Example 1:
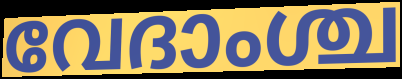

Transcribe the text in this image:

വേദാംശ്ച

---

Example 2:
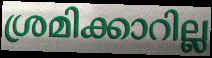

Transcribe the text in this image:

ശ്രമിക്കാറില്ല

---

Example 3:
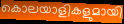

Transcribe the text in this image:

കൊലയാളികളുമായി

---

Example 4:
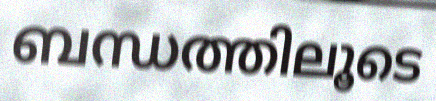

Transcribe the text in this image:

ബന്ധത്തിലൂടെ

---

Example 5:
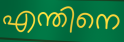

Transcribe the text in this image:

എന്തിനെ